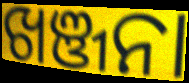
ଖଞ୍ଜନା